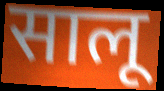
सालू